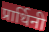
प्रार्थिनी